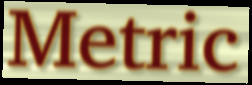
Metric